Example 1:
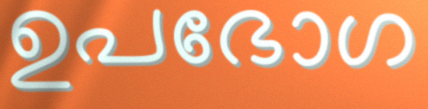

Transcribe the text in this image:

ഉപഭോഗ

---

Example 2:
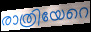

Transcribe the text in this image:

രാത്രിയേറെ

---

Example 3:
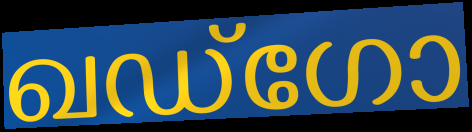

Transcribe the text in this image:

ഖഡ്ഗോ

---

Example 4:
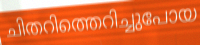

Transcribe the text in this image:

ചിതറിത്തെറിച്ചുപോയ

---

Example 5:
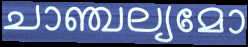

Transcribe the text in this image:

ചാഞ്ചല്യമോ